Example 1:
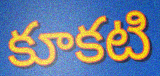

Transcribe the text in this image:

కూకటి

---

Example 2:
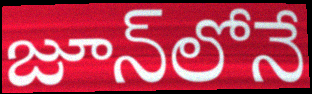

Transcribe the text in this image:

జూన్‌లోనే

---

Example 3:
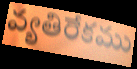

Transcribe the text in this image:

వ్యతిరేకము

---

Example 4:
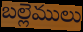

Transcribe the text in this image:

బల్లెములు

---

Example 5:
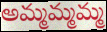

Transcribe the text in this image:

అమ్మమ్మమ్మ